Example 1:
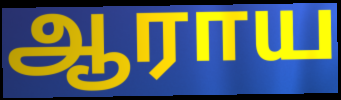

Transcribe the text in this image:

ஆராய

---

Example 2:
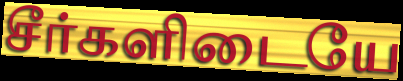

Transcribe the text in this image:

சீர்களிடையே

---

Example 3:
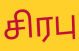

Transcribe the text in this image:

சிரபு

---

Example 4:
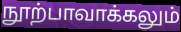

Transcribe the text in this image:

நூற்பாவாக்கலும்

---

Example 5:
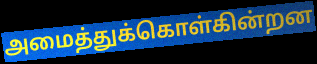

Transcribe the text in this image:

அமைத்துக்கொள்கின்றன